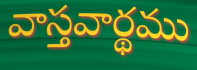
వాస్తవార్థము